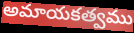
అమాయకత్వము